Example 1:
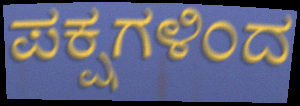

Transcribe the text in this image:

ಪಕ್ಷಗಳಿಂದ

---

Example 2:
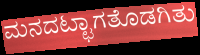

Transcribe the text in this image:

ಮನದಟ್ಟಾಗತೊಡಗಿತು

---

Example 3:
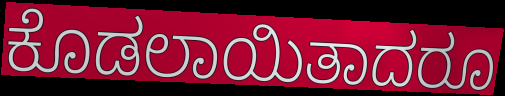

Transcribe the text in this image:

ಕೊಡಲಾಯಿತಾದರೂ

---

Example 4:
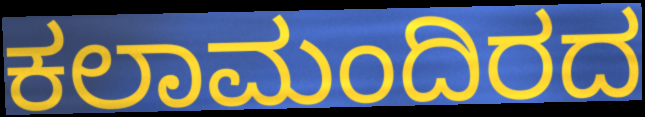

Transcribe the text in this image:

ಕಲಾಮಂದಿರದ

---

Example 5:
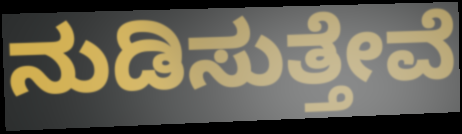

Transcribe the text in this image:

ನುಡಿಸುತ್ತೇವೆ